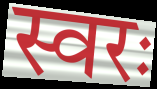
स्वरः